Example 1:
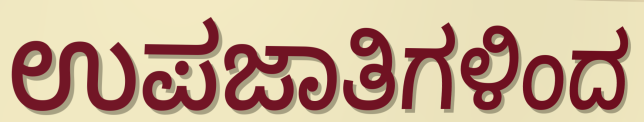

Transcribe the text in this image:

ಉಪಜಾತಿಗಳಿಂದ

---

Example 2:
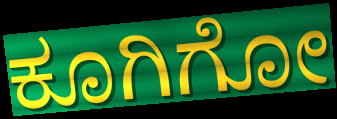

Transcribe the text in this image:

ಕೂಗಿಗೋ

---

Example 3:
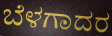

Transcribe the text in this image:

ಬೆಳಗಾದರ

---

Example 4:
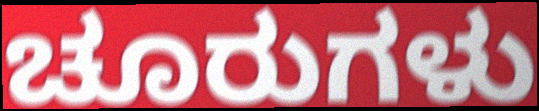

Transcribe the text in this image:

ಚೂರುಗಳು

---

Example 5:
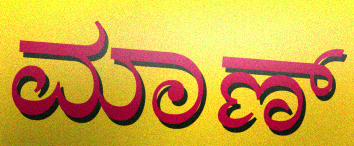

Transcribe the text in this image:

ಮಾಣ್